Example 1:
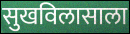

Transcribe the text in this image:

सुखविलासाला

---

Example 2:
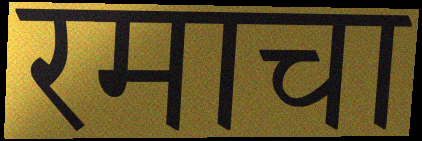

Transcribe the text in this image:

रमाचा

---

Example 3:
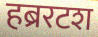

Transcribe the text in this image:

हब्ररटश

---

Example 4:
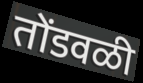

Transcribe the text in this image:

तोंडवळी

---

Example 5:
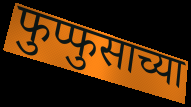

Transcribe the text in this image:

फुप्फुसाच्या